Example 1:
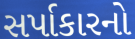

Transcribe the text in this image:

સર્પાકારનો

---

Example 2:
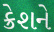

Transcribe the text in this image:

ક્રેશને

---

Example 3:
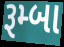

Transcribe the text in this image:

રૂમ્બા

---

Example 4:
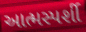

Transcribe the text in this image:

આત્મસ્પર્શી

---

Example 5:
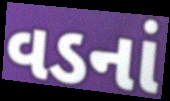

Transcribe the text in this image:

વડનાં